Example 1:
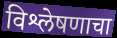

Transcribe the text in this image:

विश्लेषणाचा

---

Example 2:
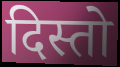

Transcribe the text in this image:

दिस्तो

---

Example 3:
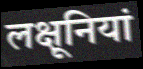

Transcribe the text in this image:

लक्षूनियां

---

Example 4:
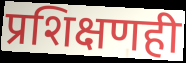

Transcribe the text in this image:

प्रशिक्षणही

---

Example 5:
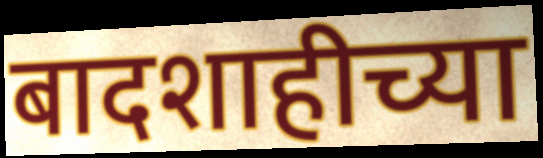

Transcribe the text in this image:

बादशाहीच्या